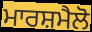
ਮਾਰਸ਼ਮੈਲੋ